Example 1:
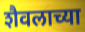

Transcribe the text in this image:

शैवलाच्या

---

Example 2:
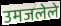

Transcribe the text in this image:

उमजलेले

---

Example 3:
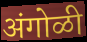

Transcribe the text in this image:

अंगोळी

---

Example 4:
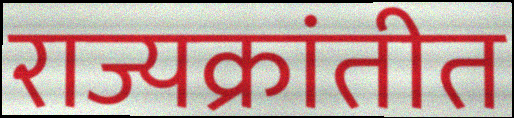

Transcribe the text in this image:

राज्यक्रांतीत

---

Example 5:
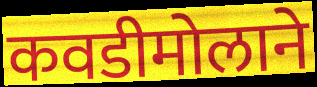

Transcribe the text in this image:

कवडीमोलाने